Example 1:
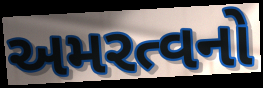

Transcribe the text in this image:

અમરત્વનો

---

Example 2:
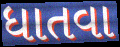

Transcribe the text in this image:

ધાતવા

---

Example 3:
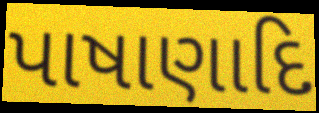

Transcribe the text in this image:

પાષાણાદિ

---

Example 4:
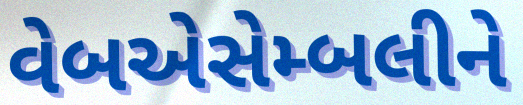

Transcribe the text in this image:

વેબએસેમ્બલીને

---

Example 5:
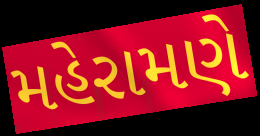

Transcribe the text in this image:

મહેરામણે